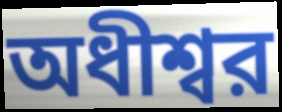
অধীশ্বর